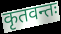
कृतवन्तः